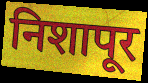
निशापूर